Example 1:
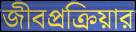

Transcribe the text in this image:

জীবপ্রক্রিয়ার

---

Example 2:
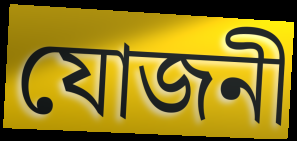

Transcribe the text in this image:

যোজনী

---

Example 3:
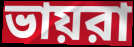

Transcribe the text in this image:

ভায়রা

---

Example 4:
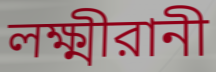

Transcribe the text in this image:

লক্ষ্মীরানী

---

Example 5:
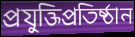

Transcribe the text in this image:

প্রযুক্তিপ্রতিষ্ঠান